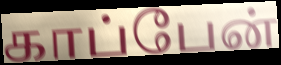
காப்பேன்